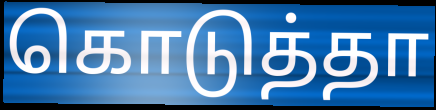
கொடுத்தா